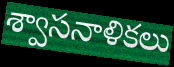
శ్వాసనాళికలు